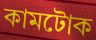
কামটোক